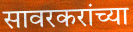
सावरकरांच्या